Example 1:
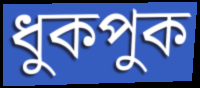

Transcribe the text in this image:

ধুকপুক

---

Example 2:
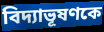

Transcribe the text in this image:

বিদ্যাভূষণকে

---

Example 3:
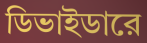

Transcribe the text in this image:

ডিভাইডারে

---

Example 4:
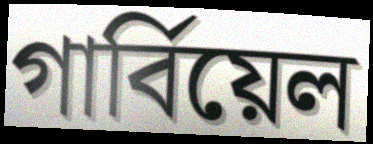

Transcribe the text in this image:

গার্বিয়েল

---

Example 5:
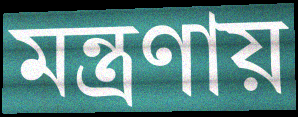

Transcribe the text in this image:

মন্ত্রণায়